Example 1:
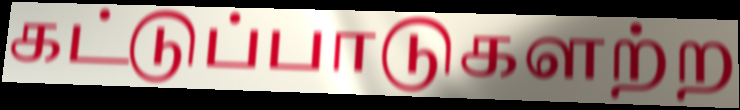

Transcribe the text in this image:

கட்டுப்பாடுகளற்ற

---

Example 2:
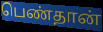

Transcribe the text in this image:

பெண்தான்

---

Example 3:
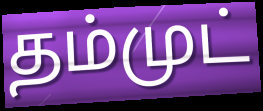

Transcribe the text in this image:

தம்முட்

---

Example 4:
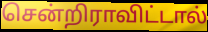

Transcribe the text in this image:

சென்றிராவிட்டால்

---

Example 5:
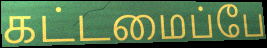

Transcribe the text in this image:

கட்டமைப்பே